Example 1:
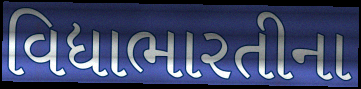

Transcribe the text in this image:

વિદ્યાભારતીના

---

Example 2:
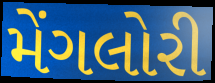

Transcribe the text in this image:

મેંગલોરી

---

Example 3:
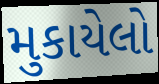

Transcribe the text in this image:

મુકાયેલો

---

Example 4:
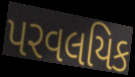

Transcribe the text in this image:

પરવલયિક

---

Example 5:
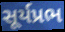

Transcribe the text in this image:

સૂર્યપ્રભ